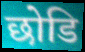
छोडि